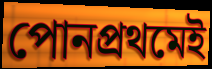
পোনপ্ৰথমেই